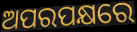
ଅପରପକ୍ଷରେ